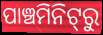
ପାଞ୍ଚମିନିଟ୍‌ରୁ